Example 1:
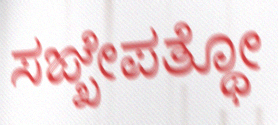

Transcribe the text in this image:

ಸಙ್ಖೇಪತ್ಥೋ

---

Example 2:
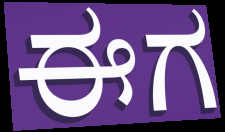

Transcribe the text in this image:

ಈಗ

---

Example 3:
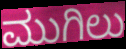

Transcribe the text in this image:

ಮುಗಿಲು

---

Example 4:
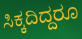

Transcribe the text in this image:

ಸಿಕ್ಕದಿದ್ದರೂ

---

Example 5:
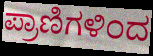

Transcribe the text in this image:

ಪ್ರಾಣಿಗಳಿಂದ